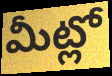
మీట్లో